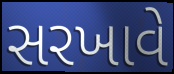
સરખાવે